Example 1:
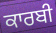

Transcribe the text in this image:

ਕਾਰਬੀ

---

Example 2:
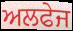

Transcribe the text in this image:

ਅਲਫੇਜ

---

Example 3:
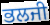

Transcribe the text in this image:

ਭਲਜੀ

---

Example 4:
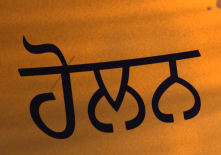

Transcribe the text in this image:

ਹੋਲਨ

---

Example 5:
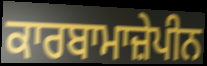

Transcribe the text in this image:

ਕਾਰਬਾਮਾਜ਼ੇਪੀਨ